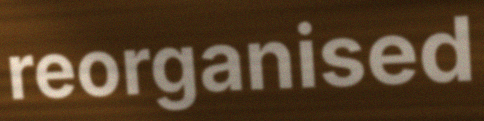
reorganised